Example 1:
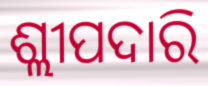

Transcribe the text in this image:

ଶ୍ଲୀପଦାରି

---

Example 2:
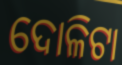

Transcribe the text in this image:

ଦୋଳିଟା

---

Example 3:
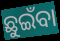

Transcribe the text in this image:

ଛୁଇଁବା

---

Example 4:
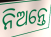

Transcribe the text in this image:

ନିଅନ୍ତେ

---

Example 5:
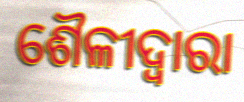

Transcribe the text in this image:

ଶୈଳୀଦ୍ୱାରା